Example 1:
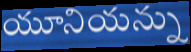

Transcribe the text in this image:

యూనియన్ను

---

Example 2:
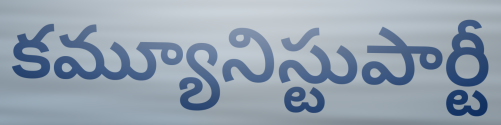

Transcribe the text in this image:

కమ్యూనిస్టుపార్టీ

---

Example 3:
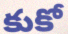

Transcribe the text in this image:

కుకో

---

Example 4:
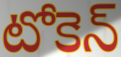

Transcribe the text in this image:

టోకెన్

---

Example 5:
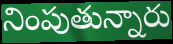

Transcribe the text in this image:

నింపుతున్నారు